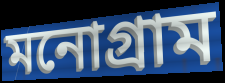
মনোগ্রাম